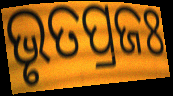
ଭୃତପ୍ରଜଃ